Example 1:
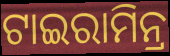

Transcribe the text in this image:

ଟାଇରାମିନ୍ର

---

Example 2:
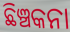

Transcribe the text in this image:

ଛିଞ୍ଚକନା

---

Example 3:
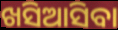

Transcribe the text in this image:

ଖସିଆସିବା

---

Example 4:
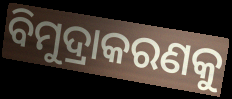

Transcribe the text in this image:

ବିମୁଦ୍ରାକରଣକୁ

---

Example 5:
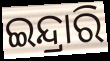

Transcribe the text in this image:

ଇନ୍ଦ୍ରାରି